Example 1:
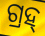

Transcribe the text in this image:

ଗ୍ରହ୍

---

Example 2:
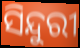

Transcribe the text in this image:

ସିନ୍ଦୁରୀ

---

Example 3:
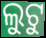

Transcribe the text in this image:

ଲୁଟୁ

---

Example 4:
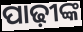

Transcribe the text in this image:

ପାଢ଼ୀଙ୍କ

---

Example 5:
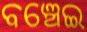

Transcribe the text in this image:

ବଞ୍ଚେଇ